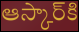
ఆస్కార్‌కి